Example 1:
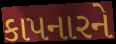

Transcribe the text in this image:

કાપનારને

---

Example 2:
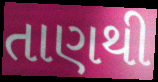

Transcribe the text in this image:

તાણથી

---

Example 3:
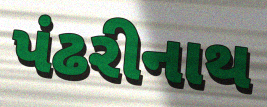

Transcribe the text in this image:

પંઢરીનાથ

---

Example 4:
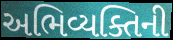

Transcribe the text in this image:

અભિવ્યક્તિની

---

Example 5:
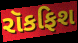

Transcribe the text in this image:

રૉકફિશ